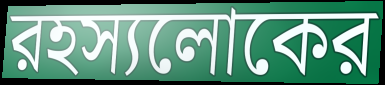
রহস্যলোকের